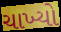
ચાખ્યો